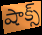
షాక్స్